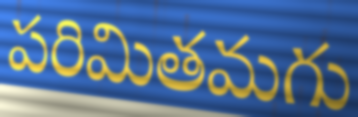
పరిమితమగు